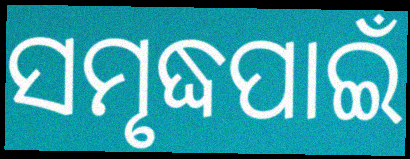
ସମୃଦ୍ଧପାଇଁ